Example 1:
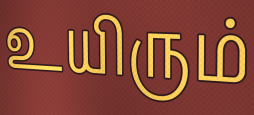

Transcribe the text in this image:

உயிரும்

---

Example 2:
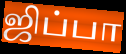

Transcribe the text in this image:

ஜிப்பா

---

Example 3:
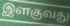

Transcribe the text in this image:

இளகுவது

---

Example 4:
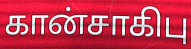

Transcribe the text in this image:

கான்சாகிபு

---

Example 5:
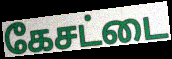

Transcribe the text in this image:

கேசட்டை